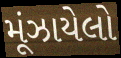
મૂંઝાયેલો